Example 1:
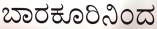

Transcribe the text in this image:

ಬಾರಕೂರಿನಿಂದ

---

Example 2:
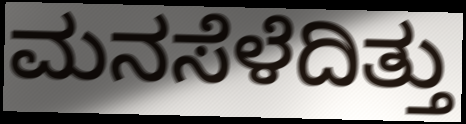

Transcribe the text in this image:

ಮನಸೆಳೆದಿತ್ತು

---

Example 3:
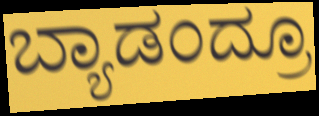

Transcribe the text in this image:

ಬ್ಯಾಡಂದ್ರೂ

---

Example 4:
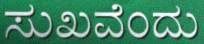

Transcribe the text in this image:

ಸುಖವೆಂದು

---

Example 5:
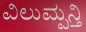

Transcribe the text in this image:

ವಿಲುಮ್ಪನ್ತಿ